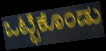
ಒಟ್ಟಿಕೊಂಡು